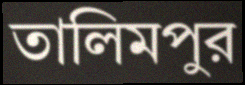
তালিমপুর